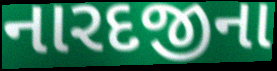
નારદજીના